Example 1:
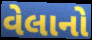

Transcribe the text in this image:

વેલાનો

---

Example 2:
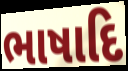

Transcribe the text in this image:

ભાષાદિ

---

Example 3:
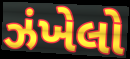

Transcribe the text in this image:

ઝંખેલો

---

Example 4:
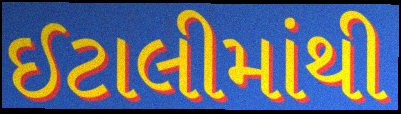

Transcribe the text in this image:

ઈટાલીમાંથી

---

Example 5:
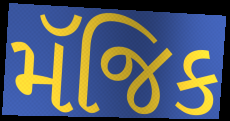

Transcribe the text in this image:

મૅજિક